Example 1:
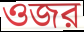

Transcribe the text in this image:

ওজর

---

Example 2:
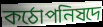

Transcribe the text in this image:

কঠোপনিষদে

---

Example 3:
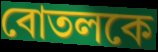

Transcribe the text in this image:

বোতলকে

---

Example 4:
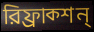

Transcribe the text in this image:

রিফ্রাক্শন্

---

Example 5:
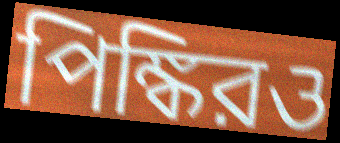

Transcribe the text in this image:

পিঙ্কিরও